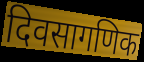
दिवसागणिक